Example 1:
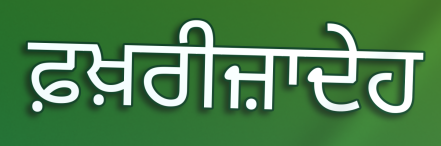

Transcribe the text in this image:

ਫ਼ਖ਼ਰੀਜ਼ਾਦੇਹ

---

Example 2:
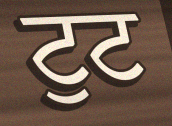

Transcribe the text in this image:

ਟੁਟ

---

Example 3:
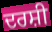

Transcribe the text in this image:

ਦਰਸ਼ੀ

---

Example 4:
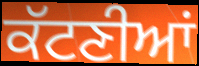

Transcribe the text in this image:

ਕੱਟਣੀਆਂ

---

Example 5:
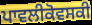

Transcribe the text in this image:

ਪਾਵਲੀਕੋਵਸਕੀ